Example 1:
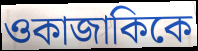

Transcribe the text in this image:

ওকাজাকিকে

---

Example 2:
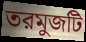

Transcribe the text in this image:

তরমুজটি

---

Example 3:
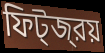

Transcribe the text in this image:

ফিট্‌জ্‌রয়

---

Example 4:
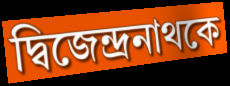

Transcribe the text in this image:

দ্বিজেন্দ্রনাথকে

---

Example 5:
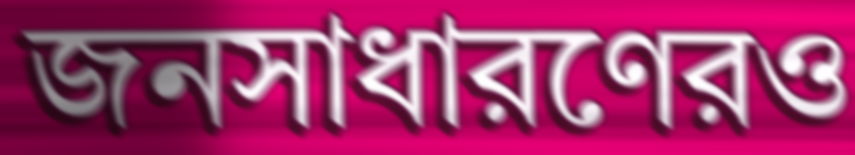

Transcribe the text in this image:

জনসাধারণেরও